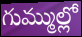
గుమ్ముల్లో